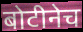
बोटीनेच